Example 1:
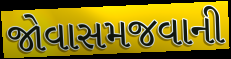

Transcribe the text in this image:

જોવાસમજવાની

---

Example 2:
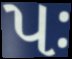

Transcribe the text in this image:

પઃ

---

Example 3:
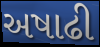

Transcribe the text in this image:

અષાઢી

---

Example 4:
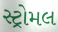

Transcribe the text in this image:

સ્ટ્રોમલ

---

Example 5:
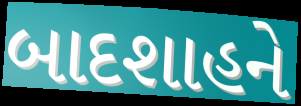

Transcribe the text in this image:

બાદશાહને